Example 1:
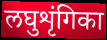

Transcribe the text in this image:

लघुशृंगिका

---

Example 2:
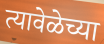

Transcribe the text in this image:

त्यावेळेच्या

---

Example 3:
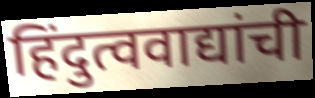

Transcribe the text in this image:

हिंदुत्ववाद्यांची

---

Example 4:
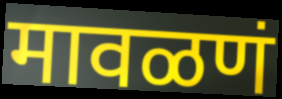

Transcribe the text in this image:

मावळणं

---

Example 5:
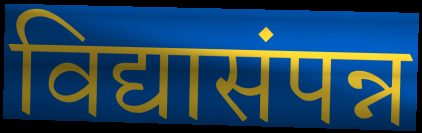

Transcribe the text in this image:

विद्यासंपन्न